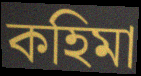
কহিমা